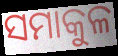
ସମାକୁଳ